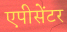
एपीसेंटर